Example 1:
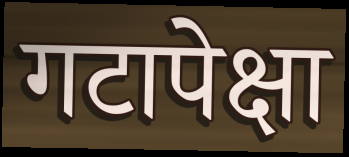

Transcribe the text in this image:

गटापेक्षा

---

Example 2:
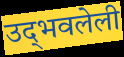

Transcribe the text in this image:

उद्‌भवलेली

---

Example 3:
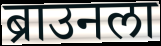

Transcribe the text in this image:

ब्राउनला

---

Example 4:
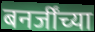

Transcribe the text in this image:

बनर्जींच्या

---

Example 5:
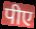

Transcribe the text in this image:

पीए